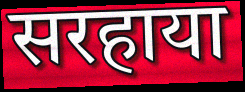
सरहाया